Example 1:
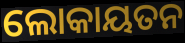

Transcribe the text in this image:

ଲୋକାୟତନ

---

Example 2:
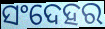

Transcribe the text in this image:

ସଂଦେହର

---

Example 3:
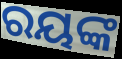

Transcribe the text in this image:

ରୟଙ୍କ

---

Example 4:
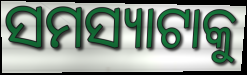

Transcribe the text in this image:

ସମସ୍ୟାଟାକୁ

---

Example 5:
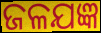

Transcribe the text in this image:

ଜଳଯଜ୍ଞ